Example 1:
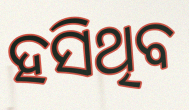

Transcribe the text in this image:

ହସିଥିବ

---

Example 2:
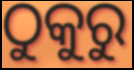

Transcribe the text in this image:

ଠୁକୁରୁ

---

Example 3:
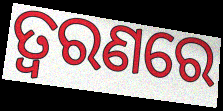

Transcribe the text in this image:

ତ୍ଵରଣରେ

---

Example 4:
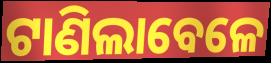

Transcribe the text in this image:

ଟାଣିଲାବେଳେ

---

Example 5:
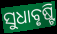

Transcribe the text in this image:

ସୁଧାବୃଷ୍ଟି